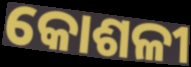
କୋଶଳୀ